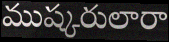
ముష్కరులారా